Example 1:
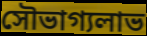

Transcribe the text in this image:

সৌভাগ্যলাভ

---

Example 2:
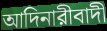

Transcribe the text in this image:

আদিনারীবাদী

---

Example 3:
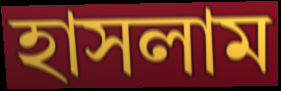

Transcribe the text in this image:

হাসলাম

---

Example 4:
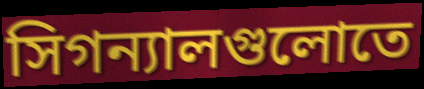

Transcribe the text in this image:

সিগন্যালগুলোতে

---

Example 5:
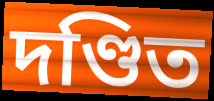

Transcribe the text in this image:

দণ্ডিত